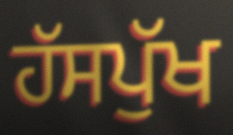
ਹੱਸਪੁੱਖ